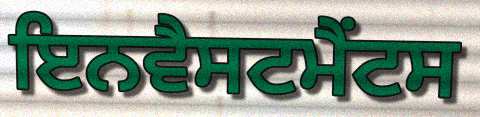
ਇਨਵੈਸਟਮੈਂਟਸ